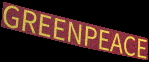
GREENPEACE